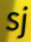
sj